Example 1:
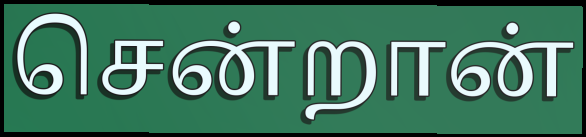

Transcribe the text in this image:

சென்றான்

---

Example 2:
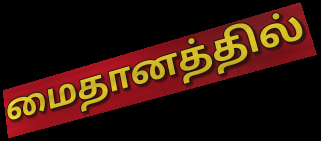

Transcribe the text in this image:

மைதானத்தில்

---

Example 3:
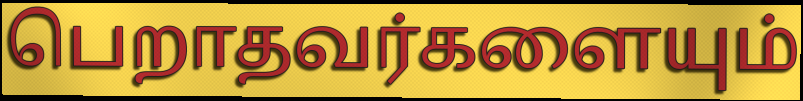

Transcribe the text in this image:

பெறாதவர்களையும்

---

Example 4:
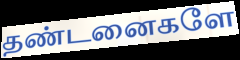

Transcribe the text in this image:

தண்டனைகளே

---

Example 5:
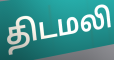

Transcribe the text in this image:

திடமலி